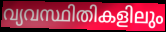
വ്യവസ്ഥിതികളിലും